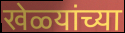
खेळ्यांच्या